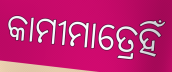
କାମୀମାତ୍ରେହିଁ